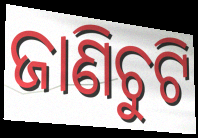
ଜାଣିଚୁଟି